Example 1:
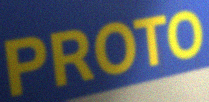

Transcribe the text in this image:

PROTO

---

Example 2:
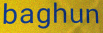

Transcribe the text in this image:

baghun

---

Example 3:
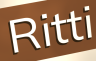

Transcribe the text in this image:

Ritti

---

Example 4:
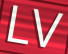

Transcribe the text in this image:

LV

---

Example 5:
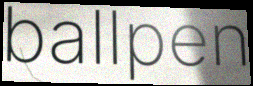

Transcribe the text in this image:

ballpen